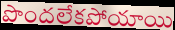
పొందలేకపోయాయి